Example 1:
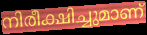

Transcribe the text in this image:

നിരീക്ഷിച്ചുമാണ്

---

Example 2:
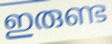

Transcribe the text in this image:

ഇരുണ്ട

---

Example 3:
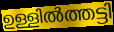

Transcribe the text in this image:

ഉള്ളിൽത്തട്ടി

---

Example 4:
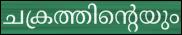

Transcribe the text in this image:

ചക്രത്തിന്റെയും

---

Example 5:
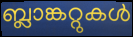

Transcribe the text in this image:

ബ്ലാങ്കറ്റുകൾ